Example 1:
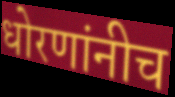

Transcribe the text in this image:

धोरणांनीच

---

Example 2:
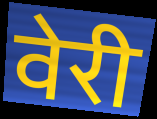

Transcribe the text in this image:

वेरी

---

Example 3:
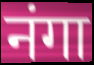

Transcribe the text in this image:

नंगा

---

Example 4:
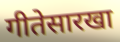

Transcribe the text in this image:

गीतेसारखा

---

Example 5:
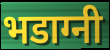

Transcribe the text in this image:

भडाग्नी